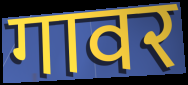
गावर